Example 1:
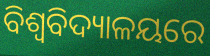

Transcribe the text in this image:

ବିଶ୍ୱବିଦ୍ୟାଳୟରେ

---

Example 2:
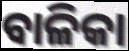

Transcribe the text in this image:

ବାଳିକା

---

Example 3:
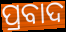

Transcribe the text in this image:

ପ୍ରବାଦ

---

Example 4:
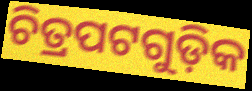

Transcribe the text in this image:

ଚିତ୍ରପଟଗୁଡ଼ିକ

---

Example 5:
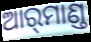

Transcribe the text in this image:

ଆର୍‌ମାଣ୍ଡ